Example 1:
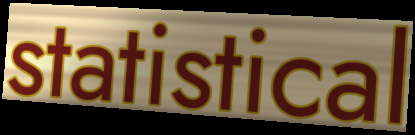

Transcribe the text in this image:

statistical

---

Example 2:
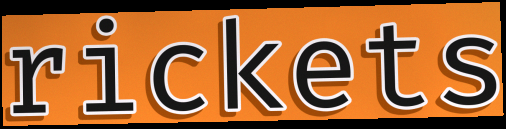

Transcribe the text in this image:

rickets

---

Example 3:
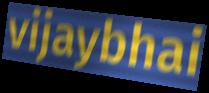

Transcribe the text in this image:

vijaybhai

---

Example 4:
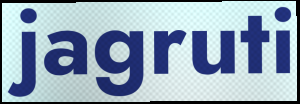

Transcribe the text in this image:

jagruti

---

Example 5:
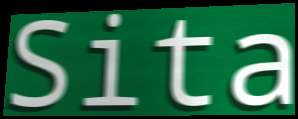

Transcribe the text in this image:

Sita